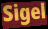
Sigel